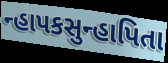
ન્હાપકસુન્હાપિતા